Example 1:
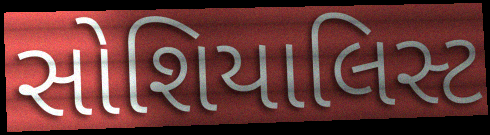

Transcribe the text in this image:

સોશિયાલિસ્ટ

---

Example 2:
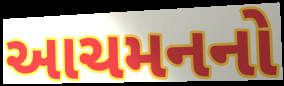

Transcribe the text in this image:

આચમનનો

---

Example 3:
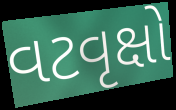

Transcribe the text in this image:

વટવૃક્ષો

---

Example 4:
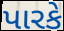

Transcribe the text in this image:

પારકે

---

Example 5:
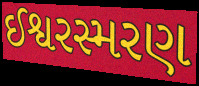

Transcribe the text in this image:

ઈશ્વરસ્મરણ